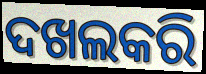
ଦଖଲକରି